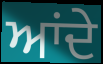
ਆਂਦੇ